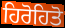
ਹਿਰੋਹਿਤੋ